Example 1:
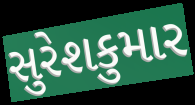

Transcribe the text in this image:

સુરેશકુમાર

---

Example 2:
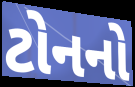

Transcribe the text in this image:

ટોનનો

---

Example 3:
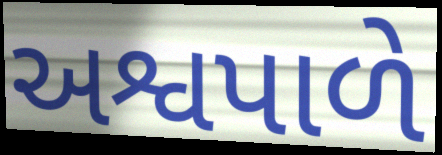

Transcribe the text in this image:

અશ્વપાળે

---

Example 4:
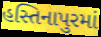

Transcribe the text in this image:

હસ્તિનાપુરમાં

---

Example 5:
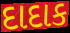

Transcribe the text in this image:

દાદાક